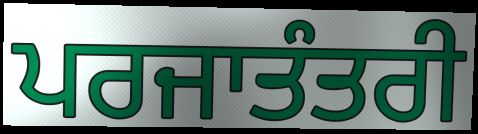
ਪਰਜਾਤੰਤਰੀ